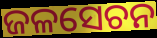
ଜଳସେଚନ